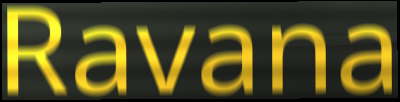
Ravana